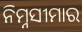
ନିମ୍ନସୀମାର